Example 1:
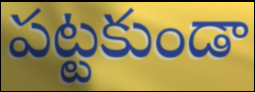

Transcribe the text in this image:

పట్టకుండా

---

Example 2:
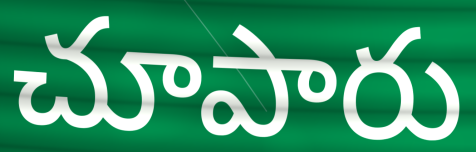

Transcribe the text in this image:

చూపారు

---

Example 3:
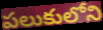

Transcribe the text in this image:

పలుకులోని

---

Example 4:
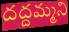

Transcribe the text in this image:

దద్దమ్మని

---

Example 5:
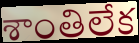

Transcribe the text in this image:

శాంతిలేక